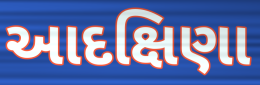
આદક્ષિણા